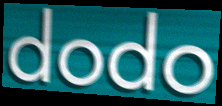
dodo